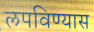
लपविण्यास